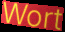
Wort